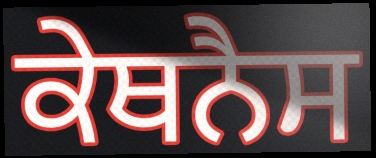
ਕੇਥਨੈਸ